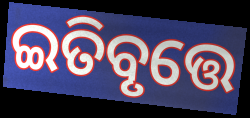
ଇତିବୃତ୍ତେ